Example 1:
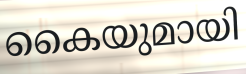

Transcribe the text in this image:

കൈയുമായി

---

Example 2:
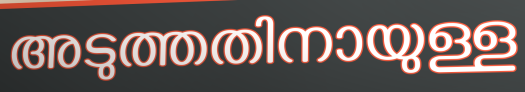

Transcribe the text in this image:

അടുത്തതിനായുള്ള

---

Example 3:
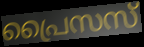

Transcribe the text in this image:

പ്രൈസസ്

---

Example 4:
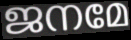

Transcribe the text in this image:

ജനമേ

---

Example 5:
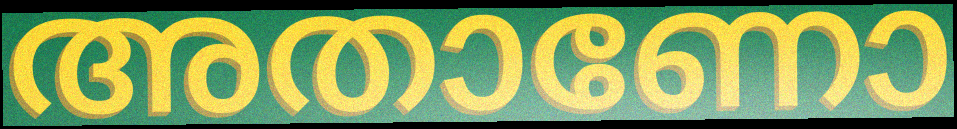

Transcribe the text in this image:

അതാണോ